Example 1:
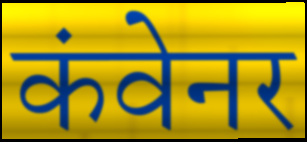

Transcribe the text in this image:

कंवेनर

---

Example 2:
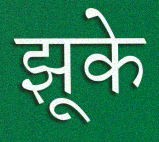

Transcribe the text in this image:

झूके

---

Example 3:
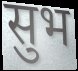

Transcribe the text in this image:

सुभ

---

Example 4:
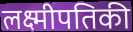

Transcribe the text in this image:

लक्ष्मीपतिकी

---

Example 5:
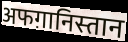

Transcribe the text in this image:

अफग़ानिस्तान